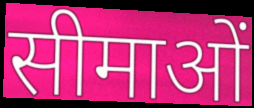
सीमाओं